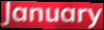
January